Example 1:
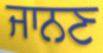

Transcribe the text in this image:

ਜਾਨਣ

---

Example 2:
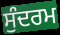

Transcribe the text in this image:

ਸੁੰਦਰਮ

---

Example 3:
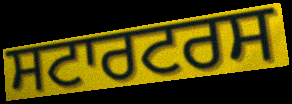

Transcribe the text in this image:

ਸਟਾਰਟਰਸ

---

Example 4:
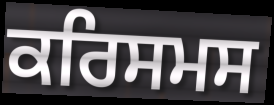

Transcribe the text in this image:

ਕਰਿਸਮਸ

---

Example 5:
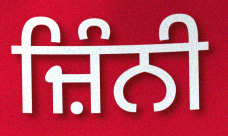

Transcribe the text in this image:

ਜ਼ਿੰਨੀ